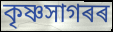
কৃষ্ণসাগৰৰ